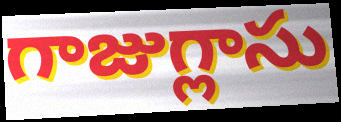
గాజుగ్లాసు